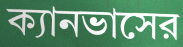
ক্যানভাসের